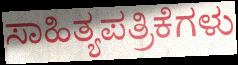
ಸಾಹಿತ್ಯಪತ್ರಿಕೆಗಳು